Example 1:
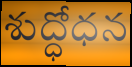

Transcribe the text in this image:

శుద్ధోధన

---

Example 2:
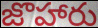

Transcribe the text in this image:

జొహారు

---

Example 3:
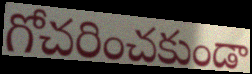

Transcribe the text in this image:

గోచరించకుండా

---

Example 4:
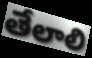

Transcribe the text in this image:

తేలాలి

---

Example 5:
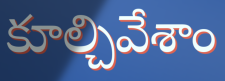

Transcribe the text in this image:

కూల్చివేశాం